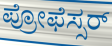
ಪ್ರೋಫೆಸ್ಸರ್